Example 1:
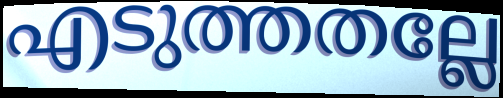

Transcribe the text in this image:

എടുത്തതല്ലേ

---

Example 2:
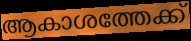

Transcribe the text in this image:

ആകാശത്തേക്ക്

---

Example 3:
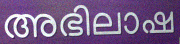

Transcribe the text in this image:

അഭിലാഷ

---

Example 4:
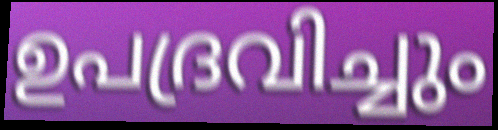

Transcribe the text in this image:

ഉപദ്രവിച്ചും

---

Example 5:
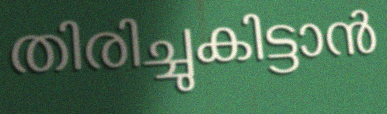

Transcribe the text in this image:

തിരിച്ചുകിട്ടാൻ